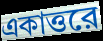
একাত্তরে